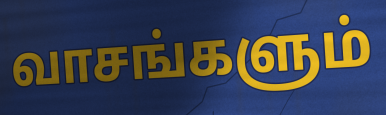
வாசங்களும்